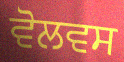
ਵੋਲਵਸ